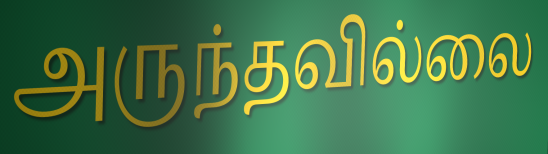
அருந்தவில்லை